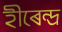
হীৰেন্দ্ৰ